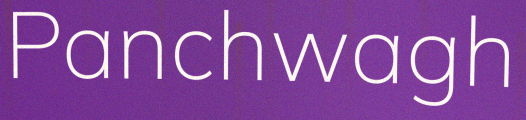
Panchwagh